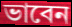
ভাবেন